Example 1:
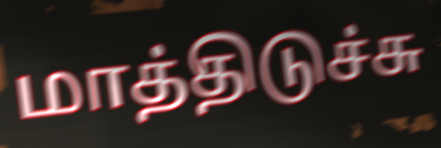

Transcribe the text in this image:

மாத்திடுச்சு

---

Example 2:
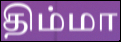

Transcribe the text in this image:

திம்மா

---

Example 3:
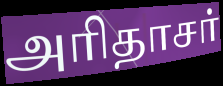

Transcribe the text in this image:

அரிதாசர்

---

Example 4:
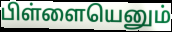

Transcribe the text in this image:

பிள்ளையெனும்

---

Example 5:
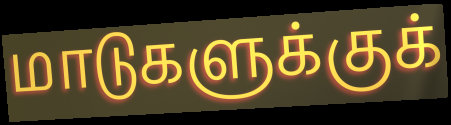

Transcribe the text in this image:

மாடுகளுக்குக்